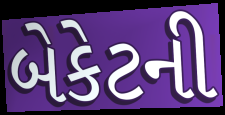
બેકેટની